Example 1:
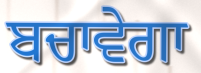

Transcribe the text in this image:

ਬਚਾਵੇਗਾ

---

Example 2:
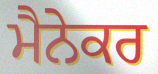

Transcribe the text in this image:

ਮੈਨੇਕਰ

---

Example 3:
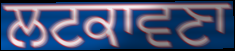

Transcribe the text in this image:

ਲਟਕਾਵਣਾ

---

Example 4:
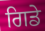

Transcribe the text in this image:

ਗਿਡੇ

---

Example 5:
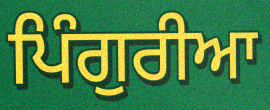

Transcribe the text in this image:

ਪਿੰਗੁਰੀਆ